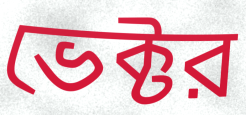
ভেক্টর